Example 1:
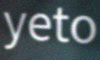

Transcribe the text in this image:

yeto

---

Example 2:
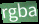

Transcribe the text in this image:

rgba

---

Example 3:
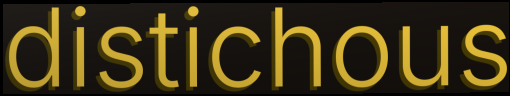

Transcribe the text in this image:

distichous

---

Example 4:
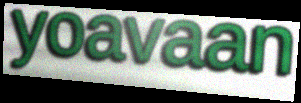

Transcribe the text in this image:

yoavaan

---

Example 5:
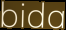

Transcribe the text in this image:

bida